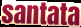
santata